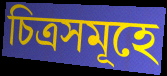
চিত্ৰসমূহে